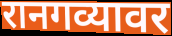
रानगव्यावर